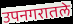
उपनगरातले